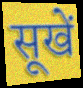
सूखें